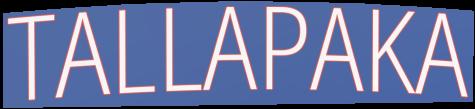
TALLAPAKA